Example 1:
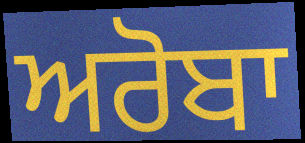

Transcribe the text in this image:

ਅਰੋਬਾ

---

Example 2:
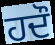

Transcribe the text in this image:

ਹਦੌ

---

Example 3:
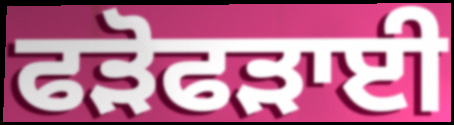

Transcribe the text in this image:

ਫੜੋਫੜਾਈ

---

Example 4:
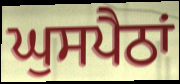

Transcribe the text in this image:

ਘੁਸਪੈਠਾਂ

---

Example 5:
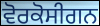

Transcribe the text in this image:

ਵੋਰਕੋਸੀਗਨ